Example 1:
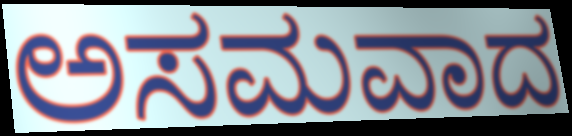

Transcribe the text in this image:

ಅಸಮವಾದ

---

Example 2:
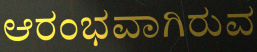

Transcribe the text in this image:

ಆರಂಭವಾಗಿರುವ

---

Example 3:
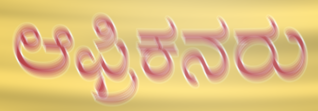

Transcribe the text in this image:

ಆಫ್ರಿಕನರು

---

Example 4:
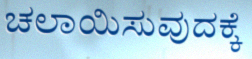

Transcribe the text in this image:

ಚಲಾಯಿಸುವುದಕ್ಕೆ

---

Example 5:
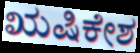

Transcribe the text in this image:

ಋಷಿಕೇಶ